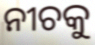
ନୀଚକୁ